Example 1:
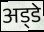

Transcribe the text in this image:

अड्‍डे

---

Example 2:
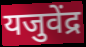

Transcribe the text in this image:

यजुवेंद्र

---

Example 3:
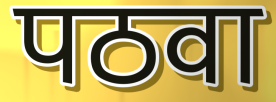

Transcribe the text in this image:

पठवा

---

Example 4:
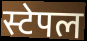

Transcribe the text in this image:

स्टेपल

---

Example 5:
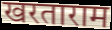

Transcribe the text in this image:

खरताराम